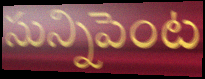
సున్నిపెంట